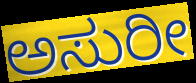
ಅಸುರೀ